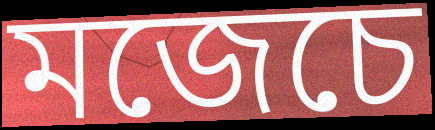
মজেচে